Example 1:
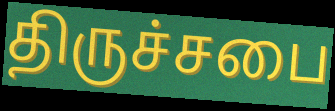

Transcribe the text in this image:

திருச்சபை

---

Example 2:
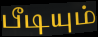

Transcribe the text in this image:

பீடியும்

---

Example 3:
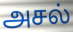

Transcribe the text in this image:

அசல்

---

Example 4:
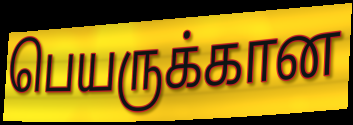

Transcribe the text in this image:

பெயருக்கான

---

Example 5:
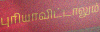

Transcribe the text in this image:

புரியாவிட்டாலும்